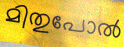
മിതുപോൽ